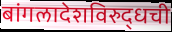
बांगलादेशविरुद्धची